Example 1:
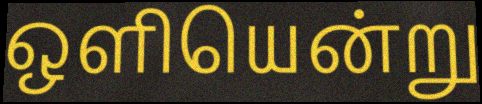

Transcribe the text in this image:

ஒளியென்று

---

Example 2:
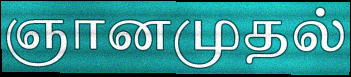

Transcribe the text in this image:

ஞானமுதல்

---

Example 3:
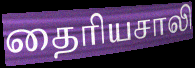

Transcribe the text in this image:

தைரியசாலி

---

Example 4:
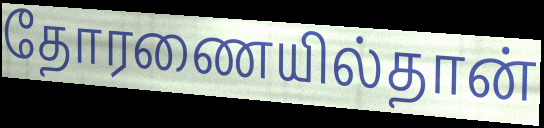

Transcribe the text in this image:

தோரணையில்தான்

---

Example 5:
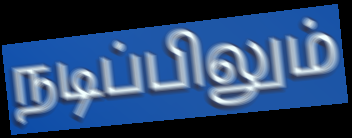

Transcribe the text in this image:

நடிப்பிலும்